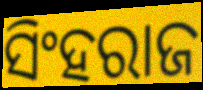
ସିଂହରାଜ